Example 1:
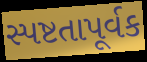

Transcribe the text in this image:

સ્પષ્ટતાપૂર્વક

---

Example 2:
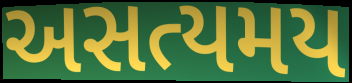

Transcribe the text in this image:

અસત્યમય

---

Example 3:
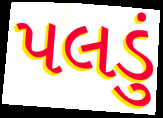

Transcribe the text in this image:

પલડું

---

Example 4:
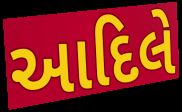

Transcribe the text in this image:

આદિલે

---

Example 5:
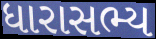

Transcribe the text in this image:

ધારાસભ્ય